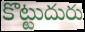
కొట్టుదురు